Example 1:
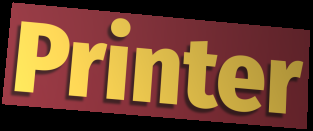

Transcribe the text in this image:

Printer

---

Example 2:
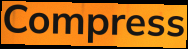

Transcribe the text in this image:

Compress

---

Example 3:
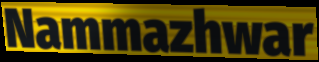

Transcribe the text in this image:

Nammazhwar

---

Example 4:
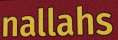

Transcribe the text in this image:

nallahs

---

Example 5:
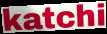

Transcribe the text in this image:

katchi